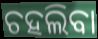
ଚହଲିବା